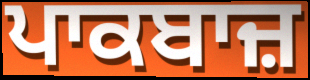
ਪਾਕਬਾਜ਼